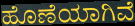
ಹೊಣೆಯಾಗಿವೆ